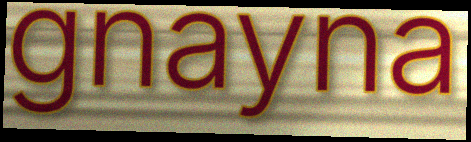
gnayna